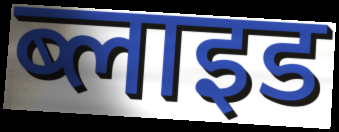
ब्लाइड